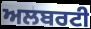
ਅਲਬਰਟੀ